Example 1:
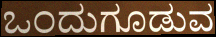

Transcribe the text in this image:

ಒಂದುಗೂಡುವ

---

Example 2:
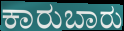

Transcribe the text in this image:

ಕಾರುಬಾರು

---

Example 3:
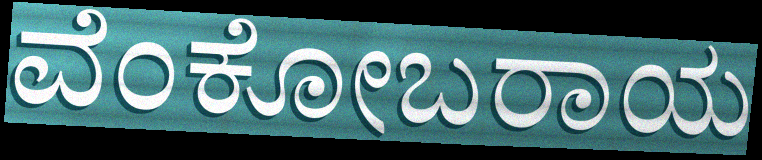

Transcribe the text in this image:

ವೆಂಕೋಬರಾಯ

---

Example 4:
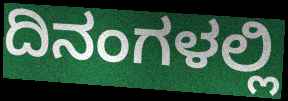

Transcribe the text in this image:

ದಿನಂಗಳಲ್ಲಿ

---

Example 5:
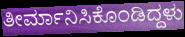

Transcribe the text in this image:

ತೀರ್ಮಾನಿಸಿಕೊಂಡಿದ್ದಳು